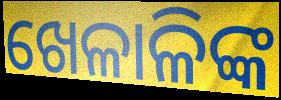
ଖେଳାଳିଙ୍କ